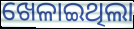
ଖେଳାଇଥିଲା